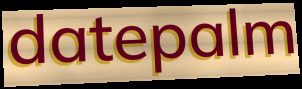
datepalm